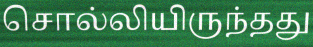
சொல்லியிருந்தது